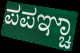
ಪಪಞ್ಚಾ